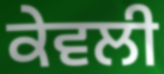
ਕੇਵਲੀ